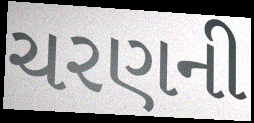
ચરણની